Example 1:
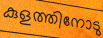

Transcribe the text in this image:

കുളത്തിനോടു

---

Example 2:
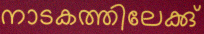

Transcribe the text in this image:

നാടകത്തിലേക്കു്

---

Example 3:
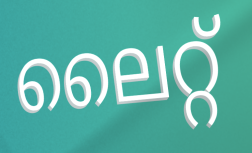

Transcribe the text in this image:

ലൈറ്റ്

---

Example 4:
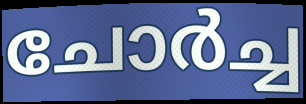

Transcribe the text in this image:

ചോർച്ച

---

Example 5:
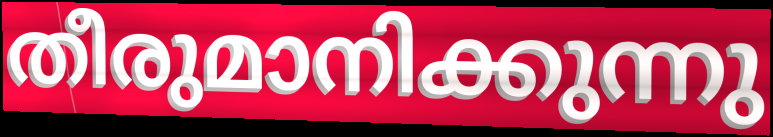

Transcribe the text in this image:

തീരുമാനിക്കുന്നു